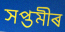
সপ্তমীৰ